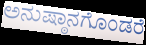
ಅನುಷ್ಠಾನಗೊಂಡರೆ